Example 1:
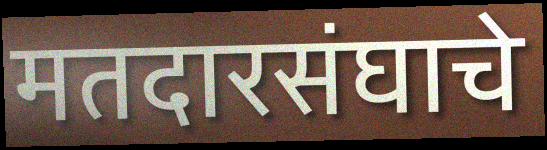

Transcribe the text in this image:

मतदारसंघाचे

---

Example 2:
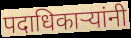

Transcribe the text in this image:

पदाधिकाऱ्यांनी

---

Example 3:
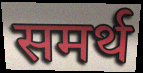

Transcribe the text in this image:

समर्थ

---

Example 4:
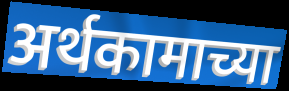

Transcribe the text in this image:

अर्थकामाच्या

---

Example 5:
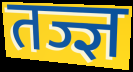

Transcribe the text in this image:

तज्ज्ञ